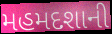
મહમદશાની